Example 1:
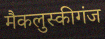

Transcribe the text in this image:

मैकलुस्कीगंज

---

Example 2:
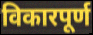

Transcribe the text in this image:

विकारपूर्ण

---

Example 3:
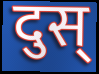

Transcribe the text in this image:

दुस्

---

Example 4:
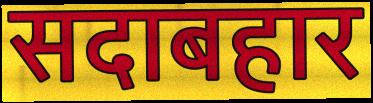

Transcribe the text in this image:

सदाबहार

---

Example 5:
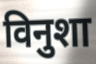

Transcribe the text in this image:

विनुशा